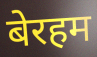
बेरहम